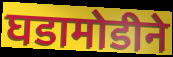
घडामोडीने